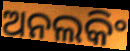
ଅନଲକିଂ